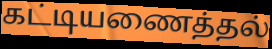
கட்டியணைத்தல்